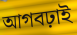
আগবঢ়াই